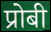
प्रोबी